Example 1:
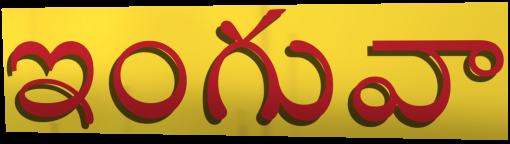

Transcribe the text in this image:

ఇంగువా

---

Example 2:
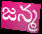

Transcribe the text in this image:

జన్మ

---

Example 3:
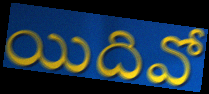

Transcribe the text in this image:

యిదివో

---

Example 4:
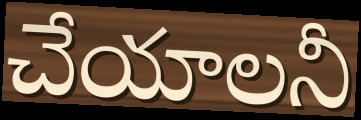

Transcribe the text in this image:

చేయాలనీ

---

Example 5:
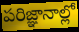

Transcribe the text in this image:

పరిజ్ఞానాల్లో